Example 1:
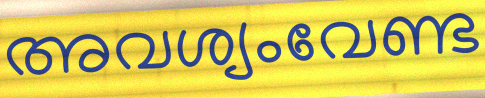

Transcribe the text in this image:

അവശ്യംവേണ്ട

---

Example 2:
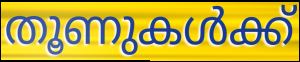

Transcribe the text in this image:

തൂണുകൾക്ക്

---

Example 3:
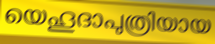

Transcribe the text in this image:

യെഹൂദാപുത്രിയായ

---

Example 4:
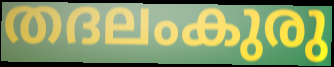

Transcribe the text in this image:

തദലംകുരു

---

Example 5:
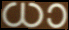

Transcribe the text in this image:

ധാ